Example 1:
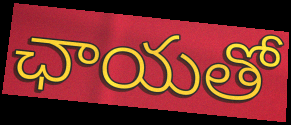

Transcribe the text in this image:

ఛాయతో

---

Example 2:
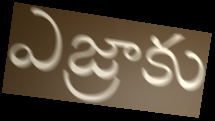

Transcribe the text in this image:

ఎజ్రాకు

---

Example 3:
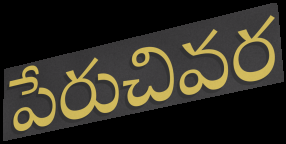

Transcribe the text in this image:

పేరుచివర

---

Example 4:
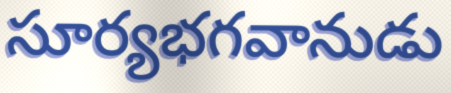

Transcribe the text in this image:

సూర్యభగవానుడు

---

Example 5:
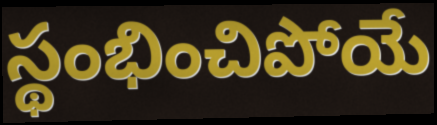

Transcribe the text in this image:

స్థంభించిపోయే